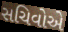
સચિવોએ